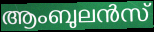
ആംബുലൻസ്